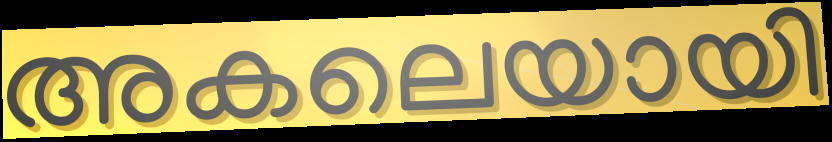
അകലെയായി